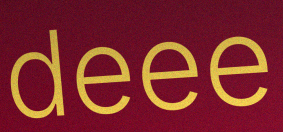
deee